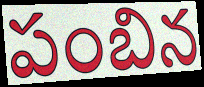
పంబిన